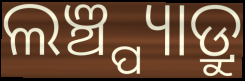
ଲଞ୍ଚ୍ପ୍ୟାଡ୍ରୁ